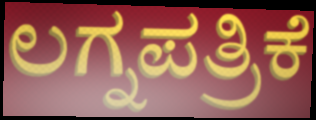
ಲಗ್ನಪತ್ರಿಕೆ